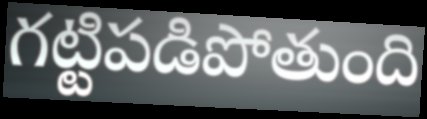
గట్టిపడిపోతుంది